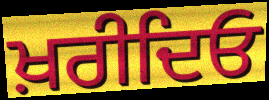
ਖ਼ਰੀਦਿਓ